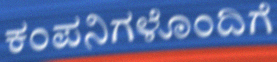
ಕಂಪನಿಗಳೊಂದಿಗೆ